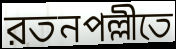
রতনপল্লীতে